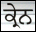
ਕ੍ਰੇਨ